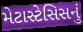
મેટાસ્ટેસિસનું